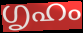
ഗൃഹം